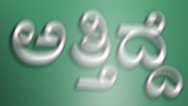
ಅತ್ತಿದ್ದೆ